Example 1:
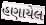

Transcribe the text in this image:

હણાયેલ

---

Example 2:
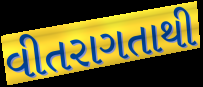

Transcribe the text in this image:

વીતરાગતાથી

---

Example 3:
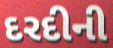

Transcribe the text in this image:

દરદીની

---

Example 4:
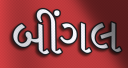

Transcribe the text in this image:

બીંગલ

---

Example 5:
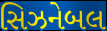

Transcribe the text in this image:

સિઝનેબલ